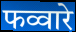
फव्वारे